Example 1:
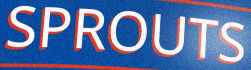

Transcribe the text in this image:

SPROUTS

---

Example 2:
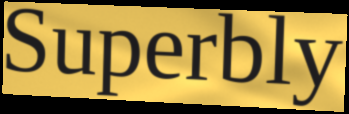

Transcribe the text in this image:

Superbly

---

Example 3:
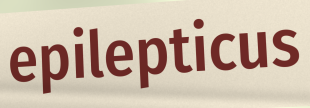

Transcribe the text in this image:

epilepticus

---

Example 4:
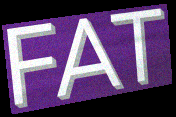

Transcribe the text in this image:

FAT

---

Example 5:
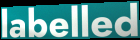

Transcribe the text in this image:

labelled